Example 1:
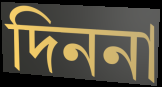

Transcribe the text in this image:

দিননা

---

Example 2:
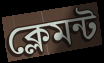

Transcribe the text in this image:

ক্লেমন্ট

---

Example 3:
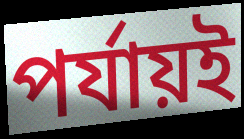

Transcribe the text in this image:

পর্যায়ই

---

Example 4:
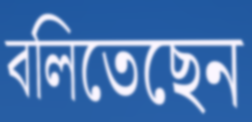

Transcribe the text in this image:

বলিতেছেন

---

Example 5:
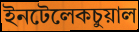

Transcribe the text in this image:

ইনটেলেকচুয়াল